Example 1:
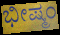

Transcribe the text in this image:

ಭೀಷ್ಮಂ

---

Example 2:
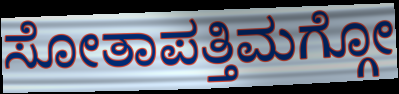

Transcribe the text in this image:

ಸೋತಾಪತ್ತಿಮಗ್ಗೋ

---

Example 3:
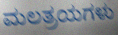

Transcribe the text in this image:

ಮಲತ್ರಯಗಳು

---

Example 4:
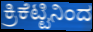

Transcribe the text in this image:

ಕ್ರಿಕೆಟ್ಟಿನಿಂದ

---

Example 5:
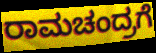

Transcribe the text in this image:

ರಾಮಚಂದ್ರಗೆ